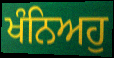
ਖੰਨਿਅਹੁ